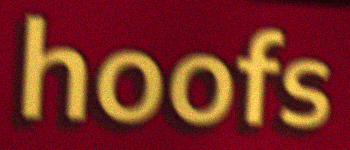
hoofs